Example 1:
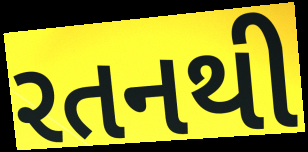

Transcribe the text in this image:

રતનથી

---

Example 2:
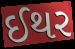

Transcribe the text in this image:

ઈથર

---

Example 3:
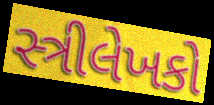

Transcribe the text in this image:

સ્ત્રીલેખકો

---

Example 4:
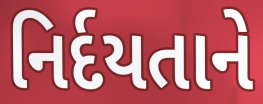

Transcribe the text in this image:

નિર્દયતાને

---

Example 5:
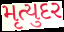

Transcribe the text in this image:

મૃત્યુદર